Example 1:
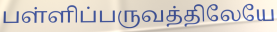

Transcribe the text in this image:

பள்ளிப்பருவத்திலேயே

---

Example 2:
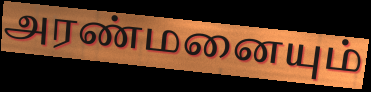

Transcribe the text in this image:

அரண்மனையும்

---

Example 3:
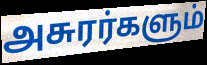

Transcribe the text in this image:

அசுரர்களும்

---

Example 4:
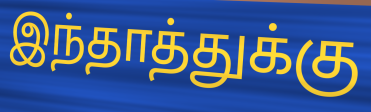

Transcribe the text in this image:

இந்தாத்துக்கு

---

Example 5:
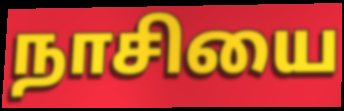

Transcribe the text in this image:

நாசியை